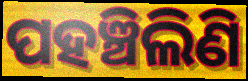
ପହଞ୍ଚିଲିଣି